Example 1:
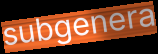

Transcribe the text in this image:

subgenera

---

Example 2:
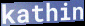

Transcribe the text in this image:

kathin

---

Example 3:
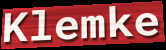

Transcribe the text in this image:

Klemke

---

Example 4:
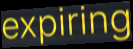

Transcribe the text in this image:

expiring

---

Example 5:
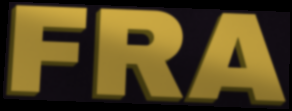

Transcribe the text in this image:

FRA